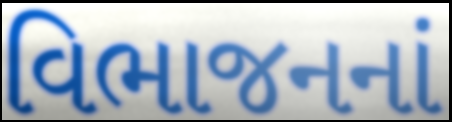
વિભાજનનાં